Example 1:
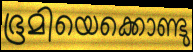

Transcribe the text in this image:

ഭൂമിയെക്കൊണ്ടു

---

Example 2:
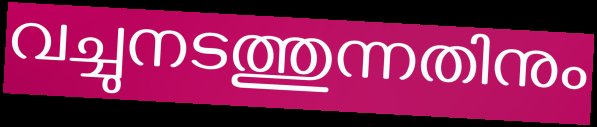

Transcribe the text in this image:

വച്ചുനടത്തുന്നതിനും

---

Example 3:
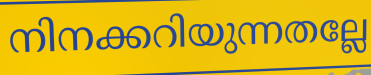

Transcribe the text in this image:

നിനക്കറിയുന്നതല്ലേ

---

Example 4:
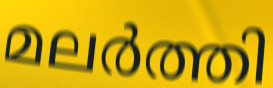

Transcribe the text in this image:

മലർത്തി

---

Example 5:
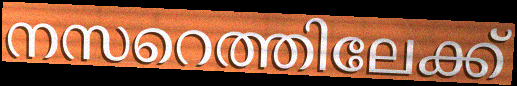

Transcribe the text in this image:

നസറെത്തിലേക്ക്